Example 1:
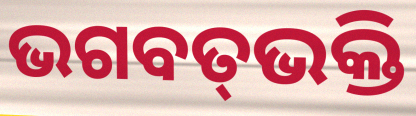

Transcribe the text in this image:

ଭଗବତ୍‌ଭକ୍ତି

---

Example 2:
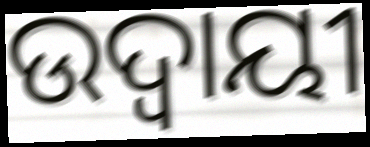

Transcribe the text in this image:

ଉଦ୍ବାୟୀ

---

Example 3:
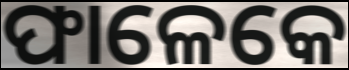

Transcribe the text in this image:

ଫାଳେକେ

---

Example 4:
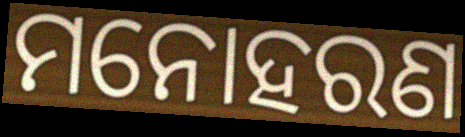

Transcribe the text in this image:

ମନୋହରଣ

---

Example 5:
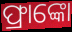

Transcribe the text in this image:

ଫ୍ରାଙ୍କୋ